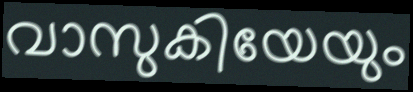
വാസുകിയേയും